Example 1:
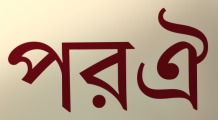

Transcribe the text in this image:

পরঐ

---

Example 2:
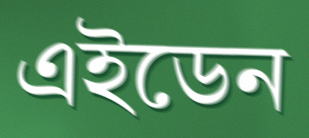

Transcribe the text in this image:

এইডেন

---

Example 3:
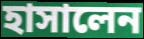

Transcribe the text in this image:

হাসালেন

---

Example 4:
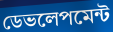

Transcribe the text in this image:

ডেভলেপমেন্ট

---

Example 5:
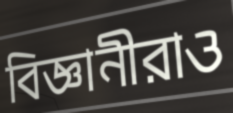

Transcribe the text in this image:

বিজ্ঞানীরাও